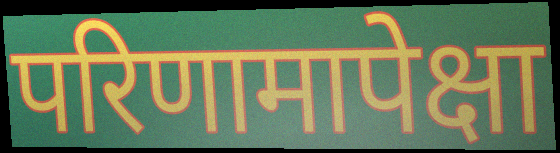
परिणामापेक्षा